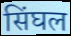
सिंघल